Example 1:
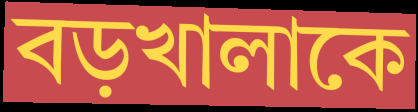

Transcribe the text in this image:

বড়খালাকে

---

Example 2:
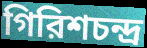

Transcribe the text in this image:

গিরিশচন্দ্র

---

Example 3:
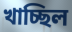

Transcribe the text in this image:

খাচ্ছিল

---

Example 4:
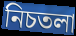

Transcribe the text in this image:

নিচতলা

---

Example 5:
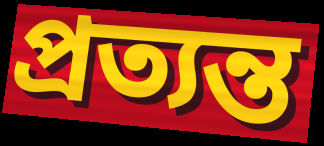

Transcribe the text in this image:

প্রত্যন্ত